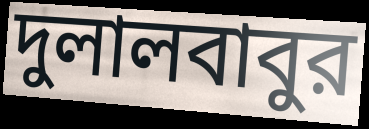
দুলালবাবুর